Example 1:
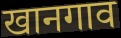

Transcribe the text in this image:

खानगाव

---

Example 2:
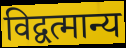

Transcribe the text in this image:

विद्वत्मान्य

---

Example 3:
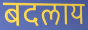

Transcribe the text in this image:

बदलाय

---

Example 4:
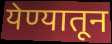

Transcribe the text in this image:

येण्यातून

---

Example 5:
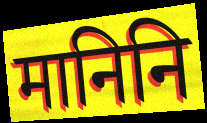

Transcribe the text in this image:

मानिनि